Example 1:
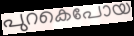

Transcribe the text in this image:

പുറകെപോയ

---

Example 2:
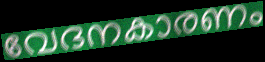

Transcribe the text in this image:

വേദനകാരണം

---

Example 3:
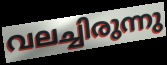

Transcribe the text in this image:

വലച്ചിരുന്നു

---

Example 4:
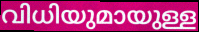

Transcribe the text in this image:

വിധിയുമായുള്ള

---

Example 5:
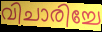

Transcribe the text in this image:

വിചാരിച്ചേ